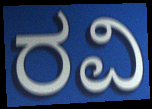
ರವಿ